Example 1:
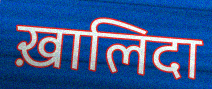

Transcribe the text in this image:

ख़ालिदा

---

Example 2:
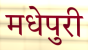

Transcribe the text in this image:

मधेपुरी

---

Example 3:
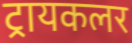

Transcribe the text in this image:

ट्रायकलर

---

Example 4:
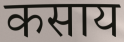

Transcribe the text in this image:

कसाय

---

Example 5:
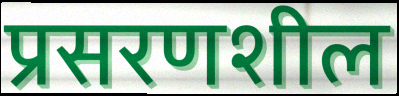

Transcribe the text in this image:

प्रसरणशील